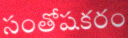
సంతోషకరం